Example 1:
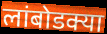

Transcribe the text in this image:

लांबोडक्या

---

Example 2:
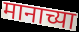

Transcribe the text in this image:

मानाच्या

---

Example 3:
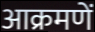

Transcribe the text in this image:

आक्रमणें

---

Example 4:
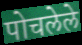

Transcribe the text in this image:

पोचलेले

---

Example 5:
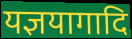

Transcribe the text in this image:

यज्ञयागादि